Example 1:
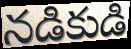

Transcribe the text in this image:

నడికుడి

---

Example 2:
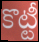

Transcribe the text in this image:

కొట్టీ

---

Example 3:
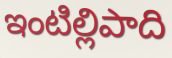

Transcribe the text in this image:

ఇంటిల్లిపాది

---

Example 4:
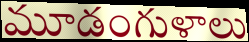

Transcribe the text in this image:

మూడంగుళాలు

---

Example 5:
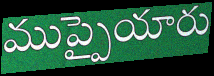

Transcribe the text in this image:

ముప్పైయారు